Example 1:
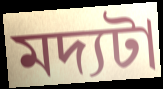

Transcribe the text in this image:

মদ্যটা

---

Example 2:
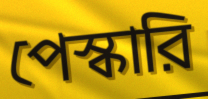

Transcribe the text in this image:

পেস্কারি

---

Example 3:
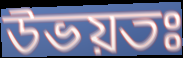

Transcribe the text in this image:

উভয়তঃ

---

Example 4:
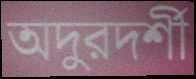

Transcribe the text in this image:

অদুরদর্শী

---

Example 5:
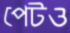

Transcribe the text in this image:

পেটও